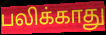
பலிக்காது